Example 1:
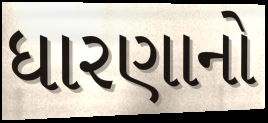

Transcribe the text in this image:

ધારણાનો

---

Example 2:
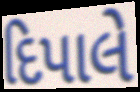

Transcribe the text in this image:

દિપાલે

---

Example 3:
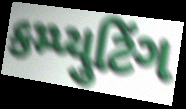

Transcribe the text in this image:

કમ્પ્યુટિંગ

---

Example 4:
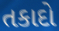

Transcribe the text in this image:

તકાદો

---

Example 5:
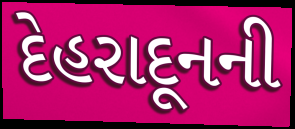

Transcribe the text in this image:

દેહરાદૂનની